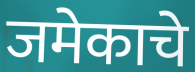
जमेकाचे